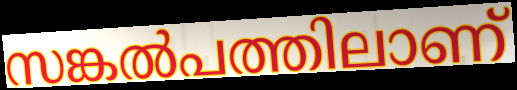
സങ്കൽപത്തിലാണ്